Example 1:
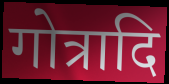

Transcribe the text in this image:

गोत्रादि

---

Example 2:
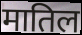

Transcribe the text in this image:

मातिल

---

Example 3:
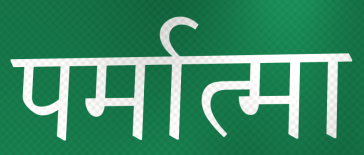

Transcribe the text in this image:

पर्मात्मा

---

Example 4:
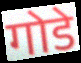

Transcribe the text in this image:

गोडे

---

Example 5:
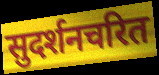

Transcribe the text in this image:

सुदर्शनचरित